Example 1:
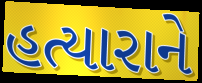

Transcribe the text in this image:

હત્યારાને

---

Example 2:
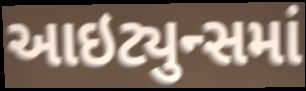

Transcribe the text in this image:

આઇટ્યુન્સમાં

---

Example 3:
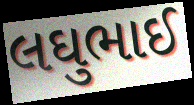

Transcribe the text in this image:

લઘુભાઈ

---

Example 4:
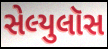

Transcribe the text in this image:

સેલ્યુલૉસ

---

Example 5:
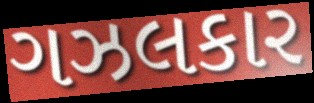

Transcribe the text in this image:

ગઝલકાર